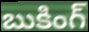
బుకింగ్